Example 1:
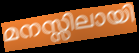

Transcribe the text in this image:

മനസ്സിലായി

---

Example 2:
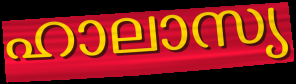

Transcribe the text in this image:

ഹാലാസ്യ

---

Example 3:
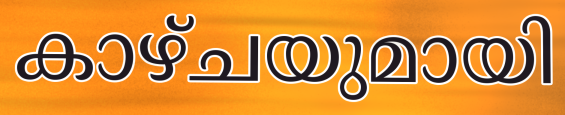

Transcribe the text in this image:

കാഴ്ചയുമായി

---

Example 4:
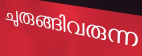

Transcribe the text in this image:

ചുരുങ്ങിവരുന്ന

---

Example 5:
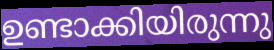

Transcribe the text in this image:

ഉണ്ടാക്കിയിരുന്നു